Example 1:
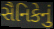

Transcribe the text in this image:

સૈનિકેનું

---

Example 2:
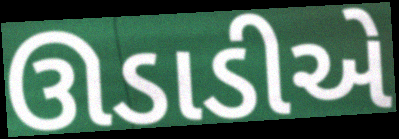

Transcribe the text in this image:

ઊડાડીએ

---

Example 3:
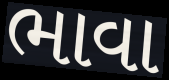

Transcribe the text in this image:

ભાવા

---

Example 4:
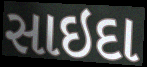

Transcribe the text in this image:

સાઇદા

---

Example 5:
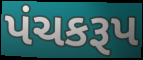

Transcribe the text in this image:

પંચકરૂપ